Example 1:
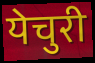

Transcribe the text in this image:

येचुरी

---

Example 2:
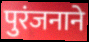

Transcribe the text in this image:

पुरंजनाने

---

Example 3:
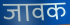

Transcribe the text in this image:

जावक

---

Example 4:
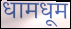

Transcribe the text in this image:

धामधूम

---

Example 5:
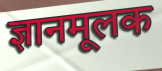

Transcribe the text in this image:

ज्ञानमूलक